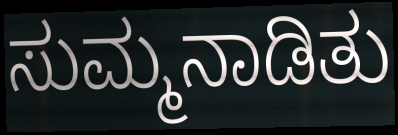
ಸುಮ್ಮನಾಡಿತು